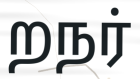
றநர்